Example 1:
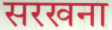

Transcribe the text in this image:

सरखना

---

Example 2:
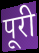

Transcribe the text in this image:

पूरी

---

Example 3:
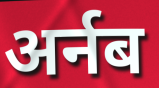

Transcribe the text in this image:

अर्नब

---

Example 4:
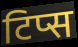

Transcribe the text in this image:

टिप्स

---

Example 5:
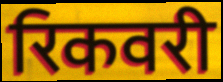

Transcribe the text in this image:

रिकवरी